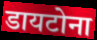
डायटोना